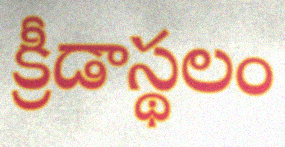
క్రీడాస్థలం